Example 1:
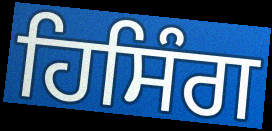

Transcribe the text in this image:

ਹਿਸਿੰਗ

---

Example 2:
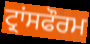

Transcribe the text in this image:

ਟ੍ਰਾਂਸਫੌਰਮ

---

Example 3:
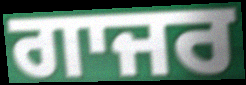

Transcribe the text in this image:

ਗਾਜਰ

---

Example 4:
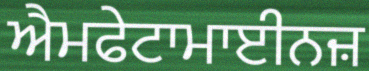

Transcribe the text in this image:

ਐਮਫੇਟਾਮਾਈਨਜ਼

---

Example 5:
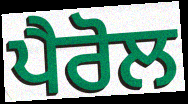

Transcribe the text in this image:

ਪੈਰੋਲ